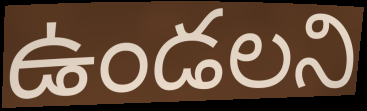
ఉండలని